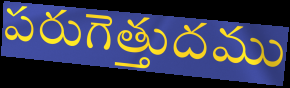
పరుగెత్తుదము